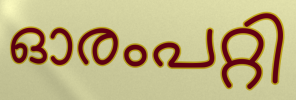
ഓരംപറ്റി